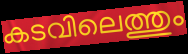
കടവിലെത്തും